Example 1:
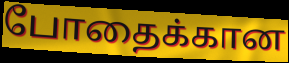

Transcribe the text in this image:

போதைக்கான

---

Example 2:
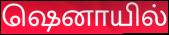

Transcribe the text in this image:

ஷெனாயில்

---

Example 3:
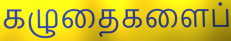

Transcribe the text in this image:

கழுதைகளைப்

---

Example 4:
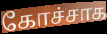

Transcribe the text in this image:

கோச்சாக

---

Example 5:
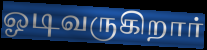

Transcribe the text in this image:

ஓடிவருகிறார்